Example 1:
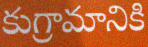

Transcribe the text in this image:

కుగ్రామానికి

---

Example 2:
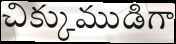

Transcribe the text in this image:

చిక్కుముడిగా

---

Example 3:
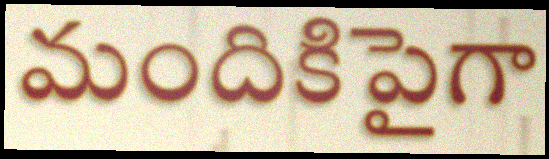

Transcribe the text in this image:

మందికిపైగా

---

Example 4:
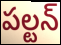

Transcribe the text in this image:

పల్టన్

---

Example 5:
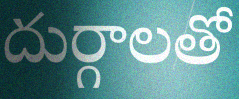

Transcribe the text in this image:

దుర్గాలతో